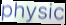
physic